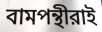
বামপন্থীরাই